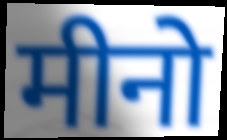
मीनो